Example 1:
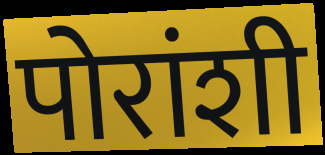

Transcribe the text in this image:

पोरांशी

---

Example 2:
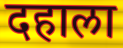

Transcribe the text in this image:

दहाला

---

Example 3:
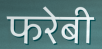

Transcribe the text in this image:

फरेबी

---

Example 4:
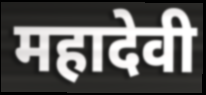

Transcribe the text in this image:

महादेवी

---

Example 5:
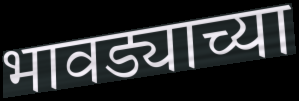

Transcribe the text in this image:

भावड्याच्या